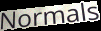
Normals